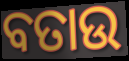
ବତାଉ